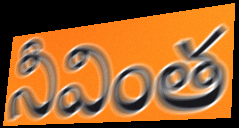
నీవింత